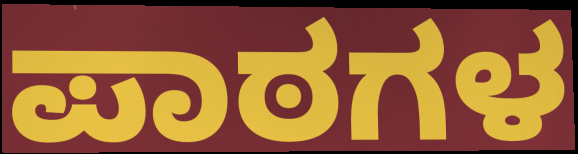
ಪಾಠಗಳ